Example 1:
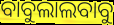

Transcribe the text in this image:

ବାବୁଲାଲବାବୁ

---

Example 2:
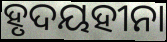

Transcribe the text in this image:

ହୃଦୟହୀନା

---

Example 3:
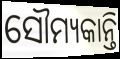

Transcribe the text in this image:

ସୌମ୍ୟକାନ୍ତି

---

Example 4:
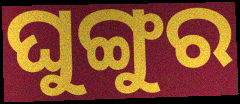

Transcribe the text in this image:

ଘୁଙ୍ଗୁର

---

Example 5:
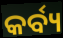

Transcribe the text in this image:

କର୍ବ୍ୟ